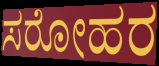
ಸರೋಹರ